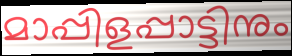
മാപ്പിളപ്പാട്ടിനും